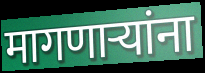
मागणार्‍यांना